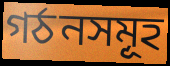
গঠনসমূহ